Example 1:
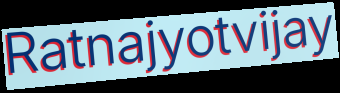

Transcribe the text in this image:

Ratnajyotvijay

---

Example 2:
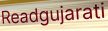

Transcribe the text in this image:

Readgujarati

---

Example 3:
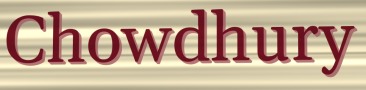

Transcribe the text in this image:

Chowdhury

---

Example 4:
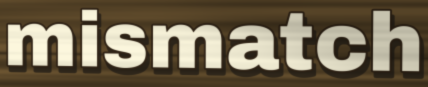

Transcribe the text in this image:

mismatch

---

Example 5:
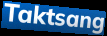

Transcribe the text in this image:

Taktsang